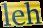
leh